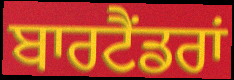
ਬਾਰਟੈਂਡਰਾਂ